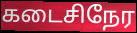
கடைசிநேர